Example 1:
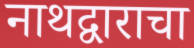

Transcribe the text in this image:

नाथद्वाराचा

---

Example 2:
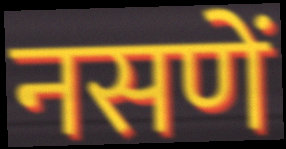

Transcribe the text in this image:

नसणें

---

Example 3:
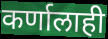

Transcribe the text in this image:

कर्णालाही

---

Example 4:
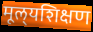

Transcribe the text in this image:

मूल्यशिक्षण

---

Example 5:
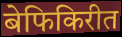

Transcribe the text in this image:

बेफिकिरीत